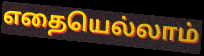
எதையெல்லாம்